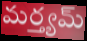
మర్త్యమ్